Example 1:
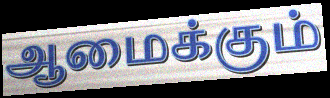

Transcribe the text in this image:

ஆமைக்கும்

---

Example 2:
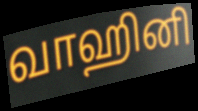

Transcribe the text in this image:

வாஹினி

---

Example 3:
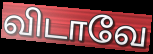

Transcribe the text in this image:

விடாவே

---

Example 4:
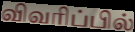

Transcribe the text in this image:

விவரிப்பில்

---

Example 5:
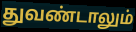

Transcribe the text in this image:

துவண்டாலும்